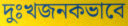
দুঃখজনকভাবে